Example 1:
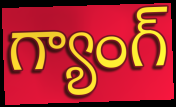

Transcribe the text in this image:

గ్యాంగ్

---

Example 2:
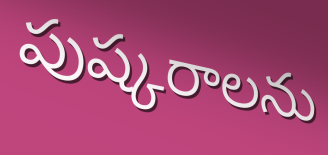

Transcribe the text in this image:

పుష్కరాలను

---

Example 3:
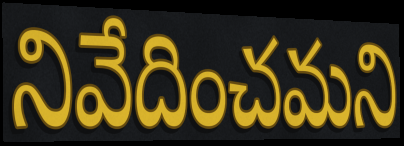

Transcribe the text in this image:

నివేదించమని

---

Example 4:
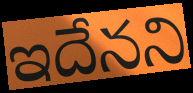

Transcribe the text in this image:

ఇదేనని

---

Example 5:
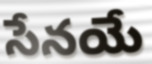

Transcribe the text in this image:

సేనయే